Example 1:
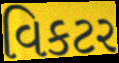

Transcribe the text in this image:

વિકટર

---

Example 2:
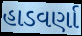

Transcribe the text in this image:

હાડવર્ણા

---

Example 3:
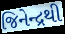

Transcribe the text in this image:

જિનેન્દ્રથી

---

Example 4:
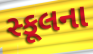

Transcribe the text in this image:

સ્કૂલના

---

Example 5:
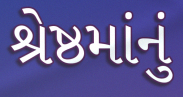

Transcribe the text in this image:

શ્રેષ્ઠમાંનું